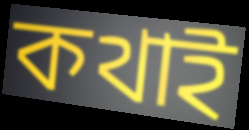
কথাই